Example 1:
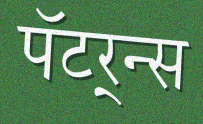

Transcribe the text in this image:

पॅटर्न्स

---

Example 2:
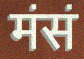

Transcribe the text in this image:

मंसं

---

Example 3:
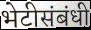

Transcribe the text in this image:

भेटीसंबंधी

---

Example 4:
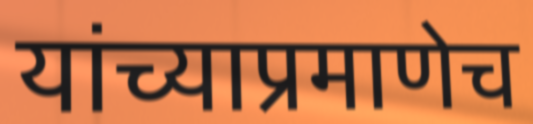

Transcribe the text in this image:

यांच्याप्रमाणेच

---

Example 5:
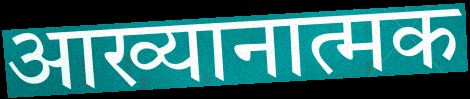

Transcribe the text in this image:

आख्यानात्मक